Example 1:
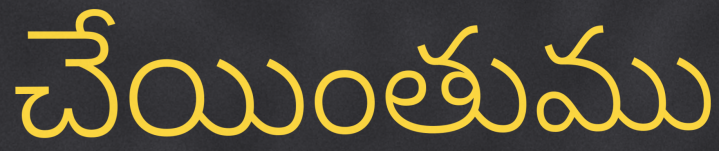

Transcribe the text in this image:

చేయింతుము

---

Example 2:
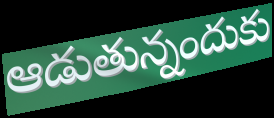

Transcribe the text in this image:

ఆడుతున్నందుకు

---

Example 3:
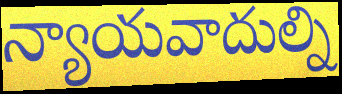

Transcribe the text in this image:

న్యాయవాదుల్ని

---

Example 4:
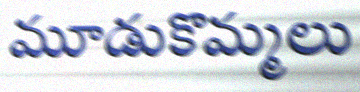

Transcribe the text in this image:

మూడుకొమ్మలు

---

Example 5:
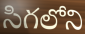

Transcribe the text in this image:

సిగలోని